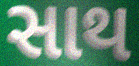
સાથ